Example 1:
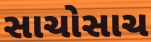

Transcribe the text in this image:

સાચોસાચ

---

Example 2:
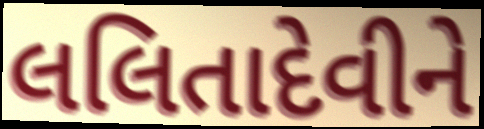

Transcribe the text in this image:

લલિતાદેવીને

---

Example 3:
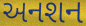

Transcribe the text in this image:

અનશન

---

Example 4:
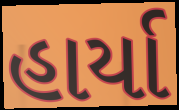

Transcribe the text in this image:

હાર્યા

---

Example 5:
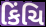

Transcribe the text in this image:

કિંચિ